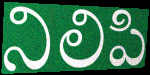
నిలిపి